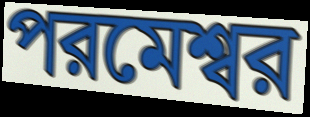
পরমেশ্বর